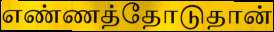
எண்ணத்தோடுதான்